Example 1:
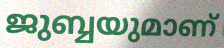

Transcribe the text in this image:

ജുബ്ബയുമാണ്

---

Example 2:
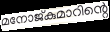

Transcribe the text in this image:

മനോജ്കുമാറിന്റെ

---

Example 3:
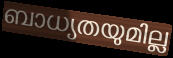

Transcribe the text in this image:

ബാധ്യതയുമില്ല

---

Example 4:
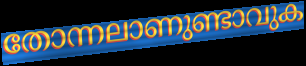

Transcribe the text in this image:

തോന്നലാണുണ്ടാവുക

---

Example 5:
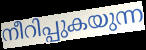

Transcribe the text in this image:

നീറിപ്പുകയുന്ന